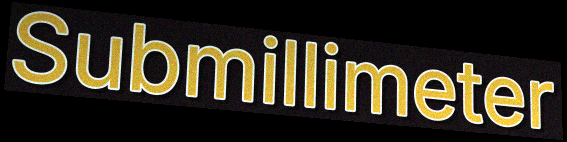
Submillimeter